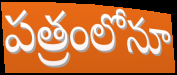
పత్రంలోనూ